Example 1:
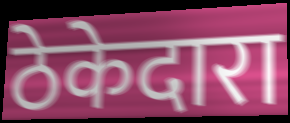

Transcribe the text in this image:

ठेकेदारा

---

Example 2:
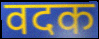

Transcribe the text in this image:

वदक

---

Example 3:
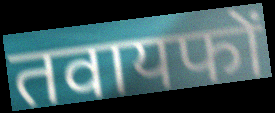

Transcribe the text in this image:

तवायफों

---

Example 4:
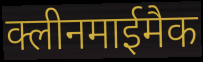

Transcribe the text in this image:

क्लीनमाईमैक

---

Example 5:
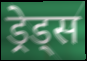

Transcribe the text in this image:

ड्रेड्स